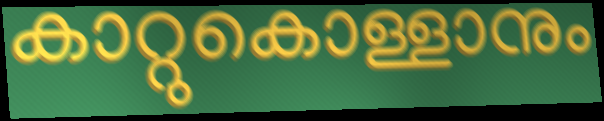
കാറ്റുകൊള്ളാനും